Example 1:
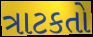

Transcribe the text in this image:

ત્રાટકતો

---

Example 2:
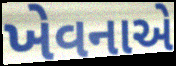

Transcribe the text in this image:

ખેવનાએ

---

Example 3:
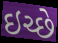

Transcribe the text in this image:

ઇચ્છે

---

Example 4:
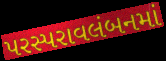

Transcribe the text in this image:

પરસ્પરાવલંબનમાં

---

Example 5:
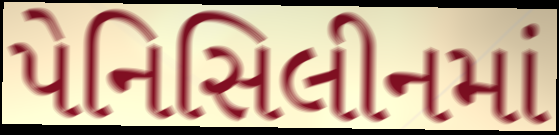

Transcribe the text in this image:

પેનિસિલીનમાં